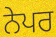
ਨੇਪਰ